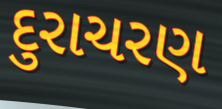
દુરાચરણ